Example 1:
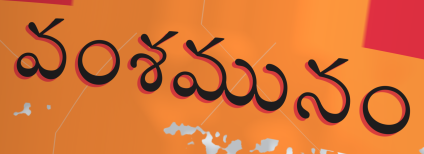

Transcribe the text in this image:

వంశమునం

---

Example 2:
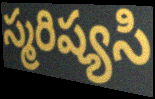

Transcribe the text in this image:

స్మరిష్యసి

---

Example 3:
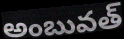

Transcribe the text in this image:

అంబువత్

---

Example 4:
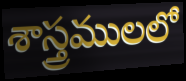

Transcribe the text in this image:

శాస్త్రములలో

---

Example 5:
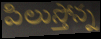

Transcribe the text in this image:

పిలుస్తోన్న